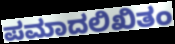
ಪಮಾದಲಿಖಿತಂ